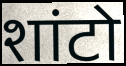
शांटो